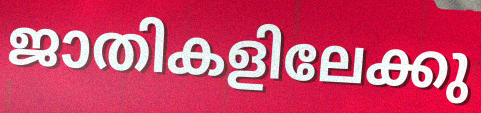
ജാതികളിലേക്കു